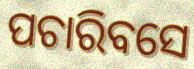
ପଚାରିବସେ